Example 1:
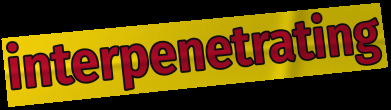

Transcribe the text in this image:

interpenetrating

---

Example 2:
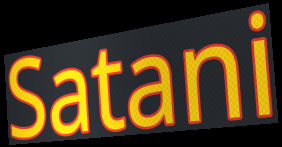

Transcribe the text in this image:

Satani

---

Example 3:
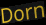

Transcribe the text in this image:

Dorn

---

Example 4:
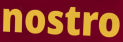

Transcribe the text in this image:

nostro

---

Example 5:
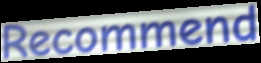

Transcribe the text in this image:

Recommend